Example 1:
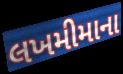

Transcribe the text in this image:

લખમીમાના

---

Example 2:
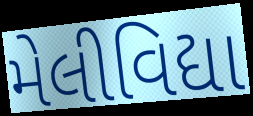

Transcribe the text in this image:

મેલીવિદ્યા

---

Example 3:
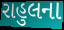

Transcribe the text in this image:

રાહુલના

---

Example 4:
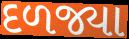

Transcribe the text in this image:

દળજ્યા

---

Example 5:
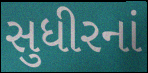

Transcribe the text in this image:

સુધીરનાં